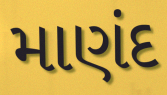
માણંદ